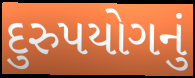
દુરુપયોગનું